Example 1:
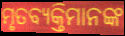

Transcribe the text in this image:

ମୃତବ୍ୟକ୍ତିମାନଙ୍କ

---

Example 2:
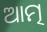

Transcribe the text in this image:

ଆତ୍ମ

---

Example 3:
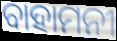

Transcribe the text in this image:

ବାହାମନୀ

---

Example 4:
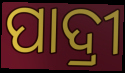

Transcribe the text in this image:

ପାଦ୍ରୀ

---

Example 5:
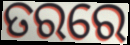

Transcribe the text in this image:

ତରରେ